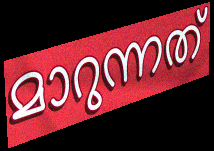
മാറുന്നത്